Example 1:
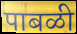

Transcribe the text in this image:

पाबळी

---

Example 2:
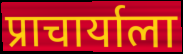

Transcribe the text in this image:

प्राचार्याला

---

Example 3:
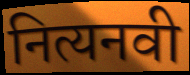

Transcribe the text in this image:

नित्यनवी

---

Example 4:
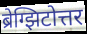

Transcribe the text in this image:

ब्रेग्झिटोत्तर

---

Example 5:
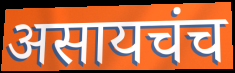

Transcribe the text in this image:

असायचंच